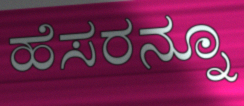
ಹೆಸರನ್ನೂ